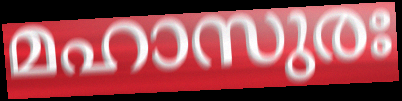
മഹാസുരഃ